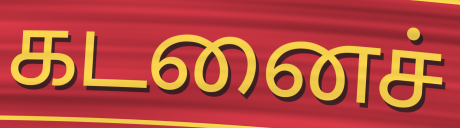
கடனைச்